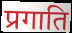
प्रगाति